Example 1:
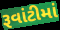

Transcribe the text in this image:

રૂવાંટીમાં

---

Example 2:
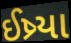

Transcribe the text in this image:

ઈષ્ર્યા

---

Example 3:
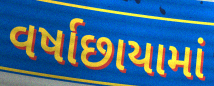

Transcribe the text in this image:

વર્ષાછાયામાં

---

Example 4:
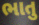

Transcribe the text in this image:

ભાતુ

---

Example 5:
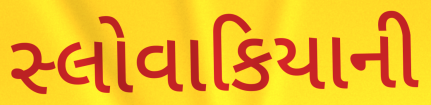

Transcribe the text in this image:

સ્લોવાકિયાની